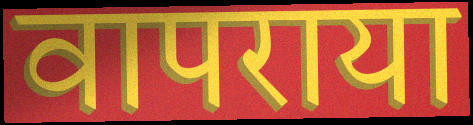
वापराया